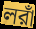
লরাঁ